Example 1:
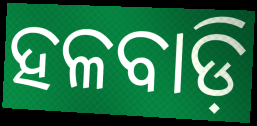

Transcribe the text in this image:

ହଳବାଡ଼ି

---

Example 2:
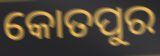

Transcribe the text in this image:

କୋତପୁର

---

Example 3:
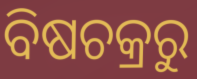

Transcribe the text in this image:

ବିଷଚକ୍ରରୁ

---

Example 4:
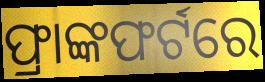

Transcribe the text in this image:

ଫ୍ରାଙ୍କଫର୍ଟରେ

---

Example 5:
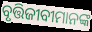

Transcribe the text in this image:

ବୃତ୍ତିଜୀବୀମାନଙ୍କ